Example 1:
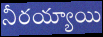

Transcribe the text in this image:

నీరయ్యాయి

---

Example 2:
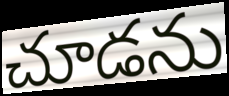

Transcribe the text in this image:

చూడను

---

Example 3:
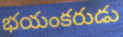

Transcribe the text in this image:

భయంకరుడు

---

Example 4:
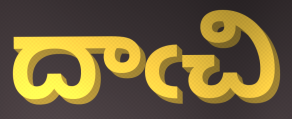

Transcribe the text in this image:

దాఁచి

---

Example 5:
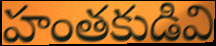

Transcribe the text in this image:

హంతకుడివి